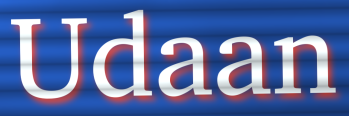
Udaan